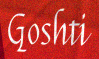
Goshti